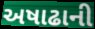
અષાઢાની